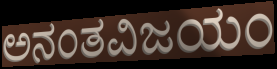
ಅನಂತವಿಜಯಂ